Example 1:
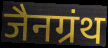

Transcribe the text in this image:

जैनग्रंथ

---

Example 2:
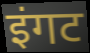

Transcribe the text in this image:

इंगट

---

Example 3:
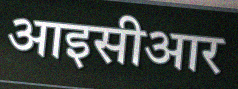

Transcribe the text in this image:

आइसीआर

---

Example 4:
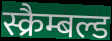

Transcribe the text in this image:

स्क्रैम्बल्ड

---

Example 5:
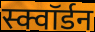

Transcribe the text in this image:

स्क्वॉर्डन